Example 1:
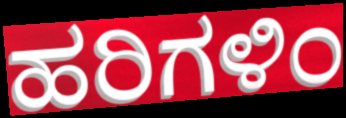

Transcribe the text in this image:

ಹರಿಗಳಿಂ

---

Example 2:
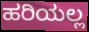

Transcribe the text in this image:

ಹರಿಯಲ್ಲ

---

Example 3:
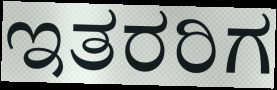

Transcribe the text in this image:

ಇತರರಿಗ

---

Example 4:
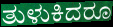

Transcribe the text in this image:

ತುಳುಕಿದರೂ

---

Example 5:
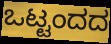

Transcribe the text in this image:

ಒಟ್ಟಂದದ